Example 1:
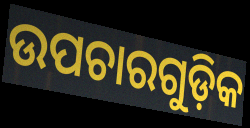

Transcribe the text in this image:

ଉପଚାରଗୁଡ଼ିକ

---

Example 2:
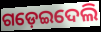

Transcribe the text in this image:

ଗଡ଼େଇଦେଲି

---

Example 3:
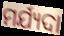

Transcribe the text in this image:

ମର୍ଯ୍ୟଦା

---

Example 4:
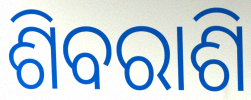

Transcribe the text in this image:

ଶିବରାଶି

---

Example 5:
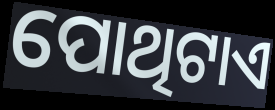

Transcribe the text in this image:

ପୋଥିଟାଏ